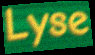
Lyse